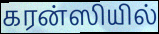
கரன்ஸியில்